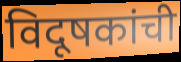
विदूषकांची